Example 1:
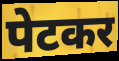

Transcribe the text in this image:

पेटकर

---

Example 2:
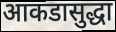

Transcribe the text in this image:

आकडासुद्धा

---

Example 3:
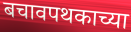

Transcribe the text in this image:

बचावपथकाच्या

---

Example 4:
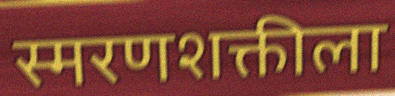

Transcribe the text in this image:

स्मरणशक्तीला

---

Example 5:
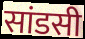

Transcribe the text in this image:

सांडसी